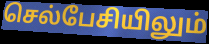
செல்பேசியிலும்